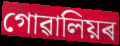
গোৱালিয়ৰ